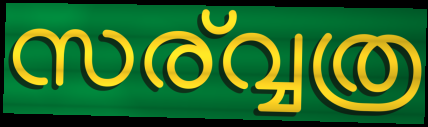
സര്വ്വത്ര